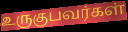
உருகுபவர்கள்